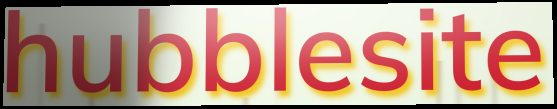
hubblesite